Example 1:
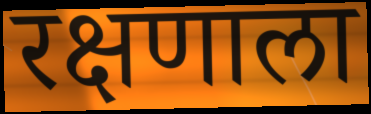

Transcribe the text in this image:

रक्षणाला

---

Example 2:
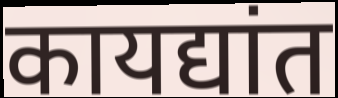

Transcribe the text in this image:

कायद्यांत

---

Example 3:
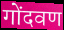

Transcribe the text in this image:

गोंदवण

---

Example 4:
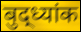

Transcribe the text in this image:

बुद्ध्यांक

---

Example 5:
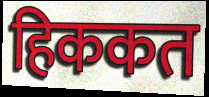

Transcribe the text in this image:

हिककत